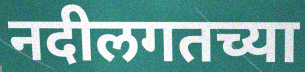
नदीलगतच्या